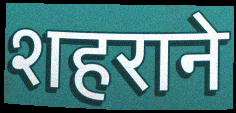
शहराने